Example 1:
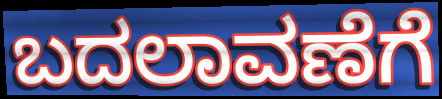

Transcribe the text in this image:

ಬದಲಾವಣೆಗೆ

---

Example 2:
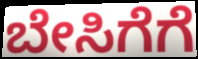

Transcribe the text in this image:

ಬೇಸಿಗೆಗೆ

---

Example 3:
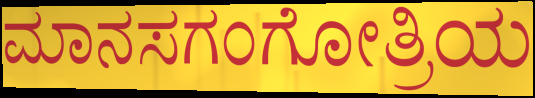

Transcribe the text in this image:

ಮಾನಸಗಂಗೋತ್ರಿಯ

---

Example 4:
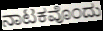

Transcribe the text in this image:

ನಾಟಕವೊಂದು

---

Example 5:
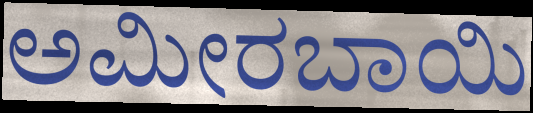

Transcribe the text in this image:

ಅಮೀರಬಾಯಿ